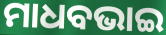
ମାଧବଭାଇ